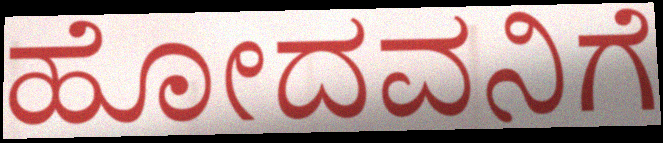
ಹೋದವನಿಗೆ